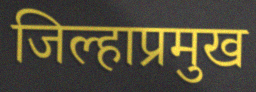
जिल्हाप्रमुख